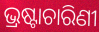
ଭ୍ରଷ୍ଟାଚାରିଣୀ